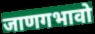
जाणगभावो